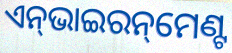
ଏନ୍‌ଭାଇରନ୍‌ମେଣ୍ଟ